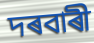
দৰবাৰী